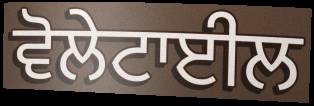
ਵੋਲੇਟਾਈਲ